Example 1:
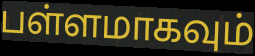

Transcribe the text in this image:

பள்ளமாகவும்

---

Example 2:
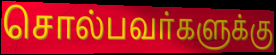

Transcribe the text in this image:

சொல்பவர்களுக்கு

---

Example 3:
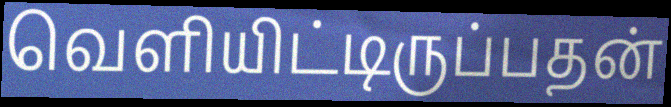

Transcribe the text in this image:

வெளியிட்டிருப்பதன்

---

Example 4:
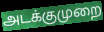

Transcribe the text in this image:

அடக்குமுறை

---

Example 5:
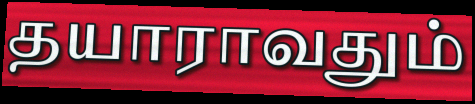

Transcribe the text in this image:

தயாராவதும்